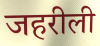
जहरीली